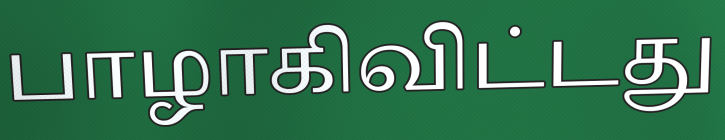
பாழாகிவிட்டது